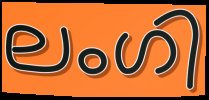
ലംഗി